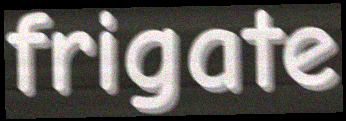
frigate